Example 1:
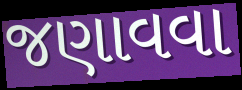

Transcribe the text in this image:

જણાવવા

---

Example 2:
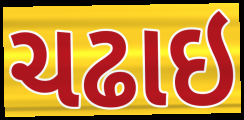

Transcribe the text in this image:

ચઢાઇ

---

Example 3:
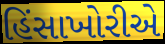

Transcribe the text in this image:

હિંસાખોરીએ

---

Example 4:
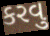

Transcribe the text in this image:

કરવુ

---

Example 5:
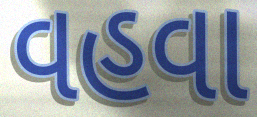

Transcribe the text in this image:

વહવા